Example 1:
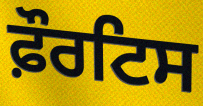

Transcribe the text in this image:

ਫ਼ੌਰਟਿਸ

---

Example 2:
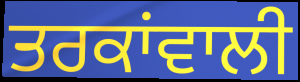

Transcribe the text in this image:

ਤਰਕਾਂਵਾਲੀ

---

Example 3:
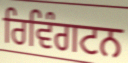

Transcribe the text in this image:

ਰਿਵਿੰਗਟਨ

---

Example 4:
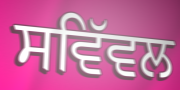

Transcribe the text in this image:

ਸਵਿੱਵਲ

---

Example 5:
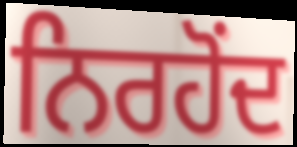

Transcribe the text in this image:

ਨਿਰਹੋਂਦ